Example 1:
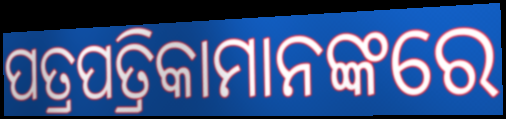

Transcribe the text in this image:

ପତ୍ରପତ୍ରିକାମାନଙ୍କରେ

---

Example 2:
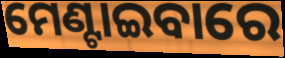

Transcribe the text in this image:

ମେଣ୍ଟାଇବାରେ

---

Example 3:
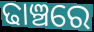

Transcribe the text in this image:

ଢାଞ୍ଚରେ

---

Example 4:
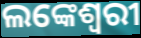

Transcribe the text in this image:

ଲଙ୍କେଶ୍ୱରୀ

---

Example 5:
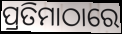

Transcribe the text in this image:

ପ୍ରତିମାଠାରେ